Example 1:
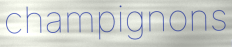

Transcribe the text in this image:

champignons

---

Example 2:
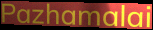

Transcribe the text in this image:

Pazhamalai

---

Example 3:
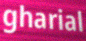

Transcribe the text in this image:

gharial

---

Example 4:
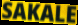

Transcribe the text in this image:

SAKALE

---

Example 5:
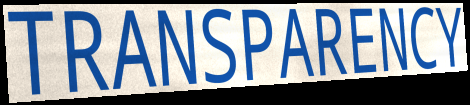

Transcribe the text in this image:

TRANSPARENCY